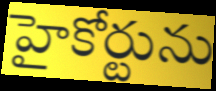
హైకోర్టును